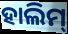
ହାଲିମ୍